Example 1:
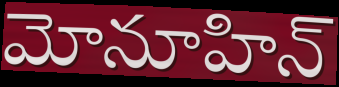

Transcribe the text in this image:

మోనూహిన్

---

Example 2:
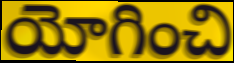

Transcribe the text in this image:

యోగించి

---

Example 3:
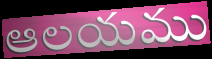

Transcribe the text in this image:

ఆలయము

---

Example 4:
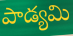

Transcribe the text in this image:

పాడ్యమి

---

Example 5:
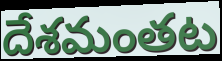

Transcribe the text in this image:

దేశమంతట